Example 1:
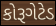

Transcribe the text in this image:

કોરૂગેટેડ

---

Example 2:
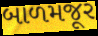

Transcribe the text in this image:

બાળમજૂર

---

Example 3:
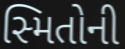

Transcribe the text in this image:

સ્મિતોની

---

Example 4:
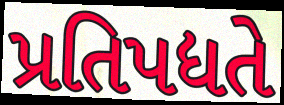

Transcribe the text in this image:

પ્રતિપદ્યતે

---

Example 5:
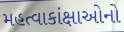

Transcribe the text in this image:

મહત્વાકાંક્ષાઓનો